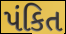
પંકિત